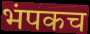
भंपकच